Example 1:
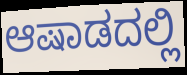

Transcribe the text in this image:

ಆಷಾಡದಲ್ಲಿ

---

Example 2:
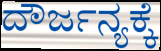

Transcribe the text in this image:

ದೌರ್ಜನ್ಯಕ್ಕೆ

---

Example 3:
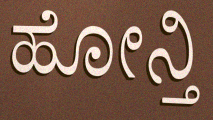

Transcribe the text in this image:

ಹೋನ್ತಿ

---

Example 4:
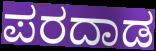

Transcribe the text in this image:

ಪರದಾಡ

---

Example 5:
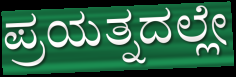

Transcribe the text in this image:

ಪ್ರಯತ್ನದಲ್ಲೇ